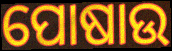
ପୋଷାଉ